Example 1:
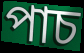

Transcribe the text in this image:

পাচ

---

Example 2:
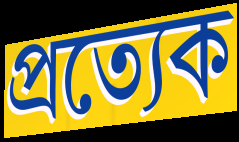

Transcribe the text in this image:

প্ৰত্যেক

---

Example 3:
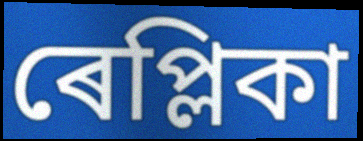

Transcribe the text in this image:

ৰেপ্লিকা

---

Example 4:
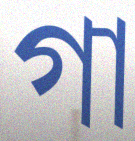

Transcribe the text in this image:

গা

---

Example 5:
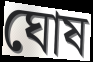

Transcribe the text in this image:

ঘোষ